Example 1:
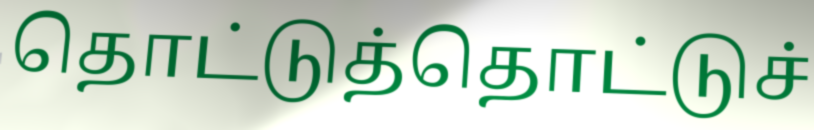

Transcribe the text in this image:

தொட்டுத்தொட்டுச்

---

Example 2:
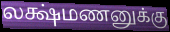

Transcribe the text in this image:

லக்ஷ்மணனுக்கு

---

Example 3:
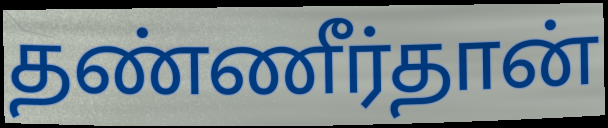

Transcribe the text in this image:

தண்ணீர்தான்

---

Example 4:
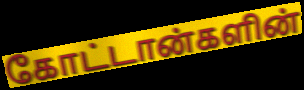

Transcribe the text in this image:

கோட்டான்களின்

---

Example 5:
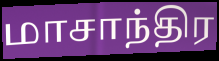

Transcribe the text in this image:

மாசாந்திர